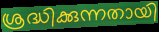
ശ്രദ്ധിക്കുന്നതായി